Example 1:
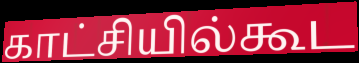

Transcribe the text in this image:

காட்சியில்கூட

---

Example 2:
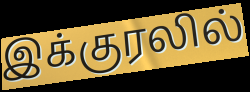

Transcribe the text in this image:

இக்குரலில்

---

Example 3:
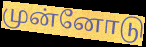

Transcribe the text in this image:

முன்னோடு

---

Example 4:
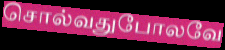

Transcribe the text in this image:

சொல்வதுபோலவே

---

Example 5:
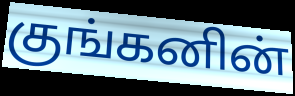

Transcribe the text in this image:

குங்கனின்